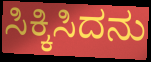
ಸಿಕ್ಕಿಸಿದನು